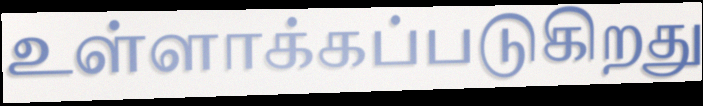
உள்ளாக்கப்படுகிறது